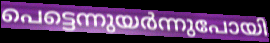
പെട്ടെന്നുയർന്നുപോയി